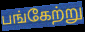
பங்கேற்று